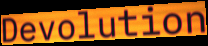
Devolution